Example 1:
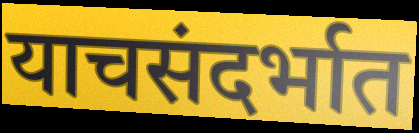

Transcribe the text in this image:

याचसंदर्भात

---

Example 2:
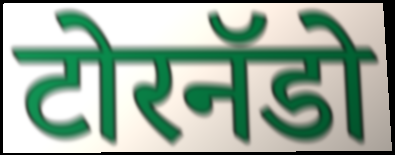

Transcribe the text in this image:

टोरनॅडो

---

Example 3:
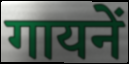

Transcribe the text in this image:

गायनें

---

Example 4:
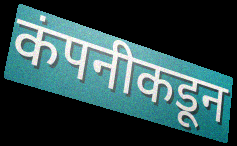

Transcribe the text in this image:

कंपनीकडून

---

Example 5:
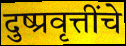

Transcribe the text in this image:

दुष्प्रवृत्तींचे